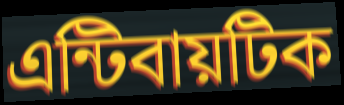
এন্টিবায়টিক